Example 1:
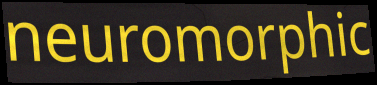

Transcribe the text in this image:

neuromorphic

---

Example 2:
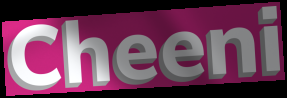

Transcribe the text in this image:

Cheeni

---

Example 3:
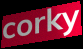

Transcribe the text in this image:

corky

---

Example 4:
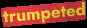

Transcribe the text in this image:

trumpeted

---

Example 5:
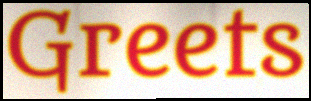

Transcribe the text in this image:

Greets